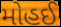
મોહઈ